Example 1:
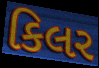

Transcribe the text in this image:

કિલર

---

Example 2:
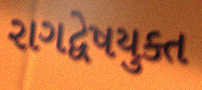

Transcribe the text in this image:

રાગદ્વેષયુક્ત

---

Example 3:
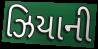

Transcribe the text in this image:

ઝિયાની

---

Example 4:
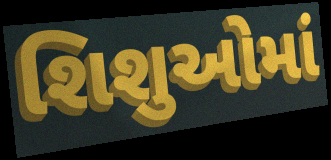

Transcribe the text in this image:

શિશુઓમાં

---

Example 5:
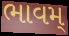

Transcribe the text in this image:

ભાવમ્